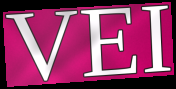
VEI